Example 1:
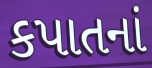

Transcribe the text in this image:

કપાતનાં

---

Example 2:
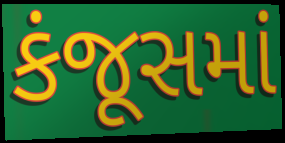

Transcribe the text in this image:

કંજૂસમાં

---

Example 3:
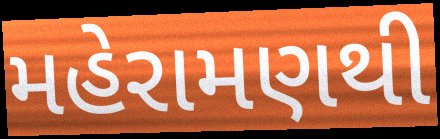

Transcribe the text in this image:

મહેરામણથી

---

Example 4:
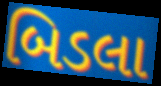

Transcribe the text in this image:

બિડલા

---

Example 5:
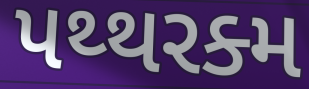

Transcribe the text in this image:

પથ્થરક્મ